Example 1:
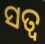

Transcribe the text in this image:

ସତ୍ୱ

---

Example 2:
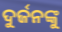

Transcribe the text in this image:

ଦୁର୍ଜନଙ୍କୁ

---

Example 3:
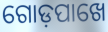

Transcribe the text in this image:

ଗୋଡ଼ପାଖେ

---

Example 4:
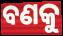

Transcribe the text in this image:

ବଣକୁ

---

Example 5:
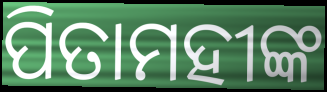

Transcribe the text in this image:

ପିତାମହୀଙ୍କ